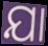
ଯା